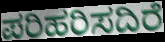
ಪರಿಹರಿಸದಿರೆ